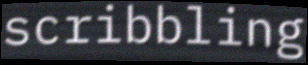
scribbling